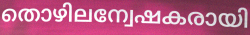
തൊഴിലന്വേഷകരായി